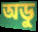
অডু